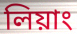
লিয়াং